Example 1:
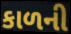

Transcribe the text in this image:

કાળની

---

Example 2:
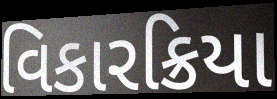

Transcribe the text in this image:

વિકારક્રિયા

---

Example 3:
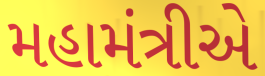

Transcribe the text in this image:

મહામંત્રીએ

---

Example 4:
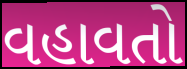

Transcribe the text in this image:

વહાવતો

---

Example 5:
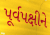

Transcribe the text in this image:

પૂર્વપક્ષીને